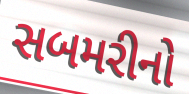
સબમરીનો